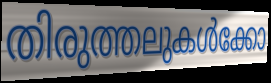
തിരുത്തലുകൾക്കോ